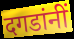
दगडांनीं